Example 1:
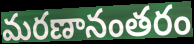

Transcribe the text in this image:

మరణానంతరం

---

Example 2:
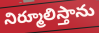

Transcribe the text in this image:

నిర్మూలిస్తాను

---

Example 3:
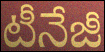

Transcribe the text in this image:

టీనేజీ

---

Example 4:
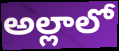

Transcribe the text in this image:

అల్లాలో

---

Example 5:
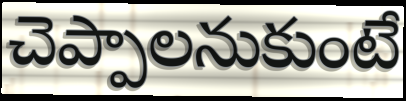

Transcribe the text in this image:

చెప్పాలనుకుంటే